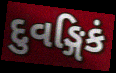
દુવઙ્ગિકં